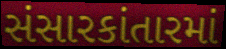
સંસારકાંતારમાં